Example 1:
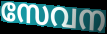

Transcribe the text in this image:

സേവന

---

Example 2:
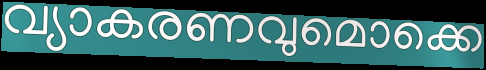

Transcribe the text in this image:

വ്യാകരണവുമൊക്കെ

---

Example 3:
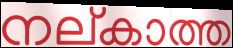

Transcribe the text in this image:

നല്കാത്ത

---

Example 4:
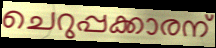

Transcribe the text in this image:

ചെറുപ്പക്കാരന്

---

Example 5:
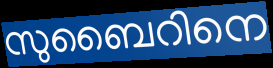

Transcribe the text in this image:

സുബൈറിനെ